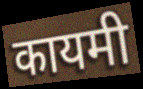
कायमी